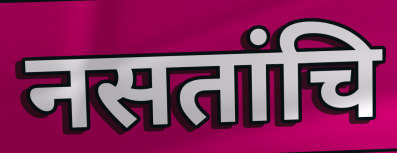
नसतांचि